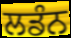
ਲਡੰਨ